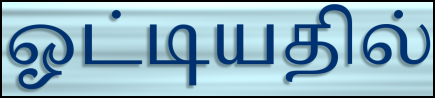
ஓட்டியதில்